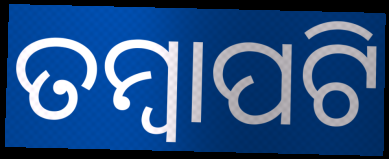
ତମ୍ବାପଟି